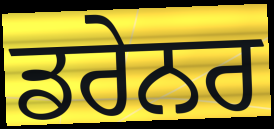
ਡਰੇਨਰ